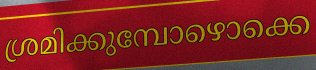
ശ്രമിക്കുമ്പോഴൊക്കെ